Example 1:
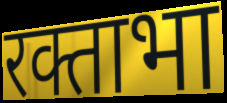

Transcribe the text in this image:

रक्ताभा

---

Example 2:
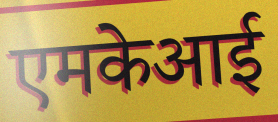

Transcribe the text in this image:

एमकेआई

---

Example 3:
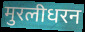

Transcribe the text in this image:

मुरलीधरन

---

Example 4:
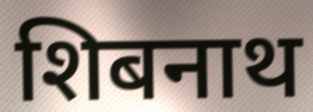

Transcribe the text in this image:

शिबनाथ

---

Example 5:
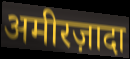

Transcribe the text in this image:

अमीरज़ादा